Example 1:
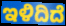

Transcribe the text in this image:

ಇಳಿದಿದೆ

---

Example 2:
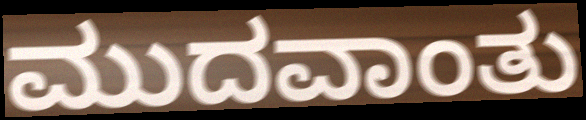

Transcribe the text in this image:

ಮುದವಾಂತು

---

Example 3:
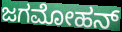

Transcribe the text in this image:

ಜಗಮೋಹನ್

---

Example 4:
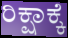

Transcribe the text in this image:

ರಿಕ್ಷಾಕ್ಕೆ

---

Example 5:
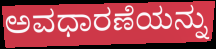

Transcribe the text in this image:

ಅವಧಾರಣೆಯನ್ನು